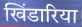
खिंडारिया